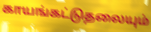
காயங்கட்டுதலையும்